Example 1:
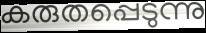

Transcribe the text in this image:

കരുതപ്പെടുന്നു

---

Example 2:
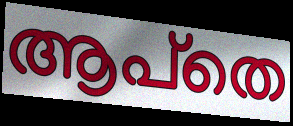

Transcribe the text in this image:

ആപ്‌തെ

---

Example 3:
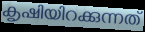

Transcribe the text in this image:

കൃഷിയിറക്കുന്നത്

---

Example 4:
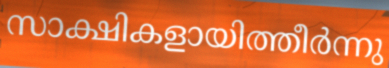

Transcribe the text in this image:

സാക്ഷികളായിത്തീർന്നു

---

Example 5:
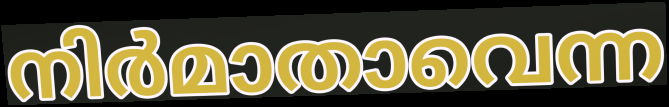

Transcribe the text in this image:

നിർമാതാവെന്ന